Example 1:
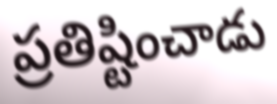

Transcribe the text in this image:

ప్రతిష్టించాడు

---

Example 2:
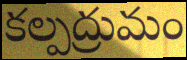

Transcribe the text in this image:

కల్పద్రుమం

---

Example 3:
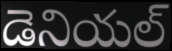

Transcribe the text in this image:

డెనియల్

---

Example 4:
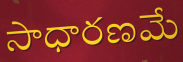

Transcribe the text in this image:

సాధారణమే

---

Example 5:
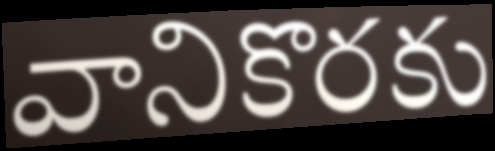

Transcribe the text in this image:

వానికొరకు